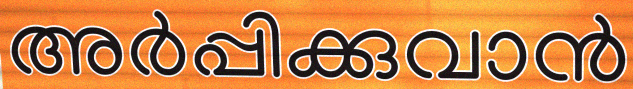
അർപ്പിക്കുവാൻ